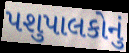
પશુપાલકોનું